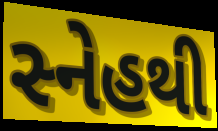
સ્નેહથી